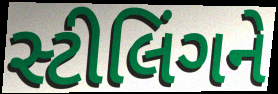
સ્ટીલિંગને